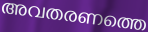
അവതരണത്തെ